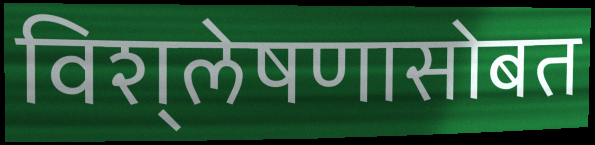
विश्लेषणासोबत